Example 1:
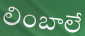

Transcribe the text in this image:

లింబాలే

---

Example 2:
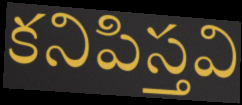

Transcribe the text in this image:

కనిపిస్తవి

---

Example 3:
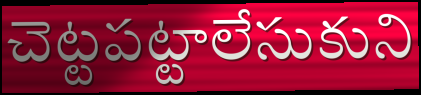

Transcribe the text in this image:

చెట్టపట్టాలేసుకుని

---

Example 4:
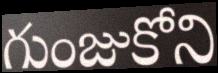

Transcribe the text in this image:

గుంజుకోని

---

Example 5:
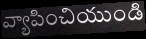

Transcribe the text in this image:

వ్యాపించియుండి